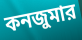
কনজুমার